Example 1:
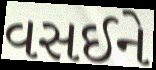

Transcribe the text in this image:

વસઈને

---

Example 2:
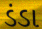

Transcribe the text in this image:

ડંડા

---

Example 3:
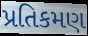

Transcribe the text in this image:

પ્રતિકમણ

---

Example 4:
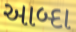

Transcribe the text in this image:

આબ્દા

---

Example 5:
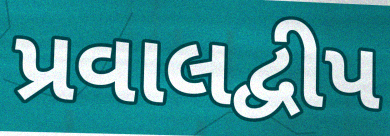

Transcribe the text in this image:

પ્રવાલદ્વીપ